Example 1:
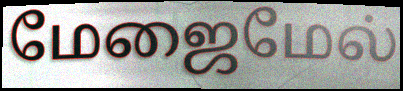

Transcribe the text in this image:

மேஜைமேல்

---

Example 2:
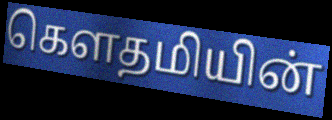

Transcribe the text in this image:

கெளதமியின்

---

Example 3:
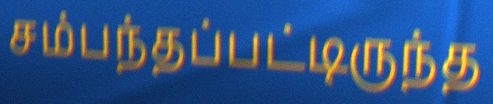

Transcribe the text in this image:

சம்பந்தப்பட்டிருந்த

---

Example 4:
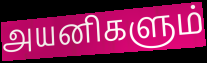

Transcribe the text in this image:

அயனிகளும்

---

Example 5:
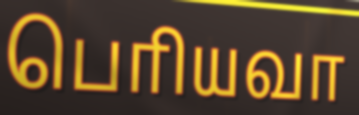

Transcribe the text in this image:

பெரியவா